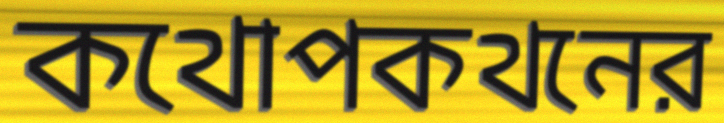
কথোপকথনের